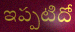
ఇప్పటిదో